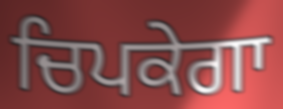
ਚਿਪਕੇਗਾ